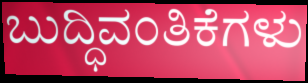
ಬುದ್ಧಿವಂತಿಕೆಗಳು